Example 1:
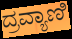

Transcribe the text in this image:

ದ್ರವ್ಯಾಣಿ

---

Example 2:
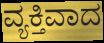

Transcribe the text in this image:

ವ್ಯಕ್ತಿವಾದ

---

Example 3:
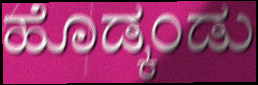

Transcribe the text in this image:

ಹೊಡ್ಕಂಡು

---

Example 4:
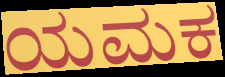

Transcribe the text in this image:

ಯಮಕ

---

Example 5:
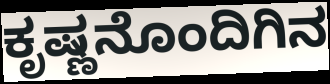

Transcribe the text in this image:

ಕೃಷ್ಣನೊಂದಿಗಿನ